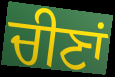
ਚੀਣਾਂ